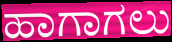
ಹಾಗಾಗಲು